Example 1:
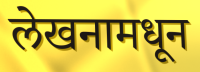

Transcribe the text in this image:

लेखनामधून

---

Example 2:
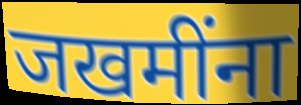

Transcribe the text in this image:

जखमींना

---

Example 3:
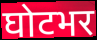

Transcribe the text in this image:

घोटभर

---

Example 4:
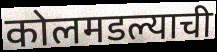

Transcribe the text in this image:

कोलमडल्याची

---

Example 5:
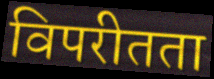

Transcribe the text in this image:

विपरीतता